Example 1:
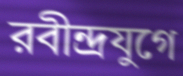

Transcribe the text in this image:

রবীন্দ্রযুগে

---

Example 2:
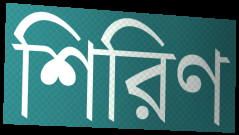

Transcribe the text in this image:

শিরিণ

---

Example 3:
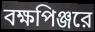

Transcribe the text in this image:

বক্ষপিঞ্জরে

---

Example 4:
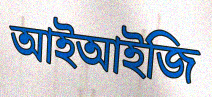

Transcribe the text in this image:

আইআইজি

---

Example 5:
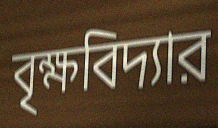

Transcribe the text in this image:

বৃক্ষবিদ্যার